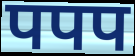
पपप